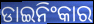
ଡାଇନିଂକାର